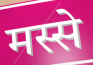
मस्से